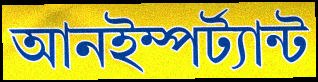
আনইম্পর্ট্যান্ট